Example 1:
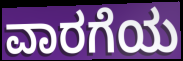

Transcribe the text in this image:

ವಾರಗೆಯ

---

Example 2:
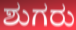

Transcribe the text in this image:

ಶುಗರು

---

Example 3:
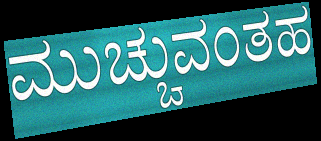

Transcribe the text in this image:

ಮುಚ್ಚುವಂತಹ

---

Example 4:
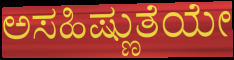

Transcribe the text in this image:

ಅಸಹಿಷ್ಣುತೆಯೇ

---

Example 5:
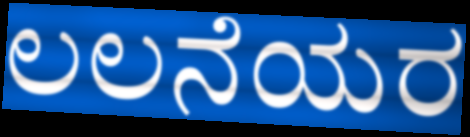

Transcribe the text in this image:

ಲಲನೆಯರ